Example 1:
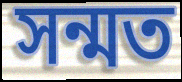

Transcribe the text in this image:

সন্মত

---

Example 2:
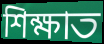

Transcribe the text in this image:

শিক্ষাত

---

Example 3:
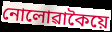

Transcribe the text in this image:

নোলোৱাকৈয়ে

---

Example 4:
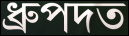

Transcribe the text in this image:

ধ্ৰুপদত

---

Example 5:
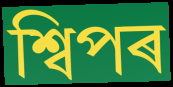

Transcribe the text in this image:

শ্বিপৰ